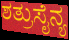
ಶತ್ರುಸೈನ್ಯ